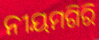
ନୀୟମଗିରି